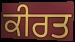
ਕੀਰਤ